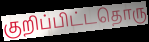
குறிப்பிட்டதொரு